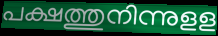
പക്ഷത്തുനിന്നുളള